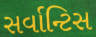
સર્વાન્ટિસ